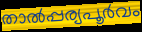
താൽപ്പര്യപൂർവം